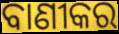
ବାଣୀକର